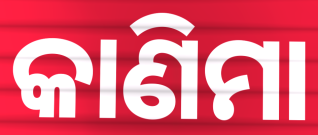
କାଣିମା